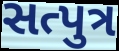
સત્પુત્ર